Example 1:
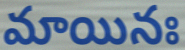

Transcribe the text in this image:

మాయినః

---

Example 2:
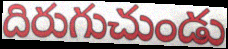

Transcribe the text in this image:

దిరుగుచుండు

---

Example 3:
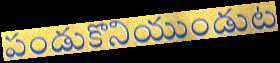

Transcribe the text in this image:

పండుకొనియుండుట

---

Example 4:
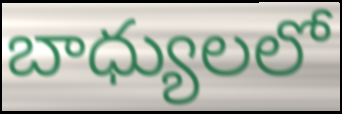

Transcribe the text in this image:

బాధ్యులలో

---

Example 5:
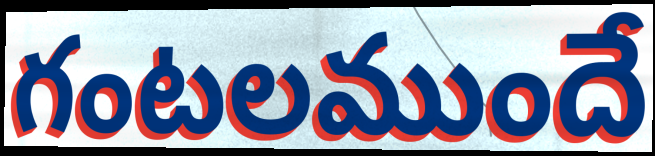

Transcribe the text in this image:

గంటలముందే